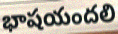
భాషయందలి